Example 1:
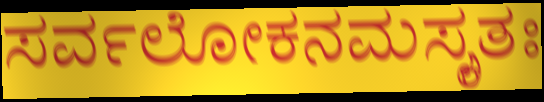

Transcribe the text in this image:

ಸರ್ವಲೋಕನಮಸ್ಕೃತಃ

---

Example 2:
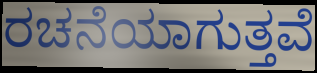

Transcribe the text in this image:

ರಚನೆಯಾಗುತ್ತವೆ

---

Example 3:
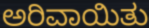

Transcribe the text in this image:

ಅರಿವಾಯಿತು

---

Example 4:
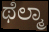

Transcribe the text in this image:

ಥೆಲ್ಮಾ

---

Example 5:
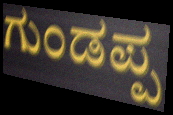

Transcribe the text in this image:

ಗುಂಡಪ್ಪ